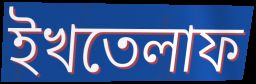
ইখতেলাফ